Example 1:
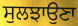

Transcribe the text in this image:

ਸੁਲਝਾਉਣਾ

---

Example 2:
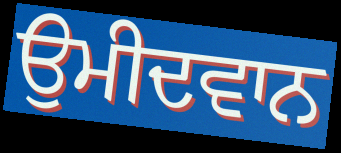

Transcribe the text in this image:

ਉਮੀਦਵਾਨ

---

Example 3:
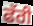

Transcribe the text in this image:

ਫੱਰੀ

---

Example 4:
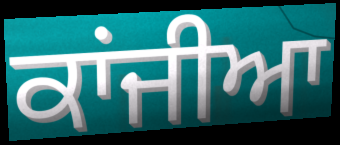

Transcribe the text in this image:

ਕਾਂਜੀਆ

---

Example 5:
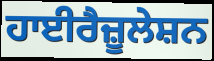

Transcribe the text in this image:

ਹਾਈਰੈਜ਼ੂਲੇਸ਼ਨ